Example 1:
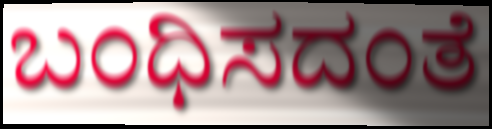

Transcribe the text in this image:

ಬಂಧಿಸದಂತೆ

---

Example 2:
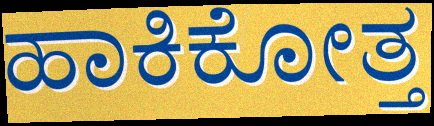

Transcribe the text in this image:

ಹಾಕಿಕೋತ್ತ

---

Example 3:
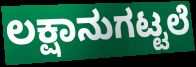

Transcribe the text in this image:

ಲಕ್ಷಾನುಗಟ್ಟಲೆ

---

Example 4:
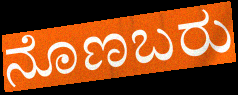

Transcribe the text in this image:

ನೊಣಬರು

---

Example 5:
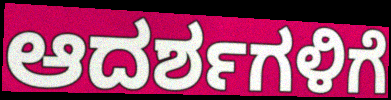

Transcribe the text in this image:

ಆದರ್ಶಗಳಿಗೆ